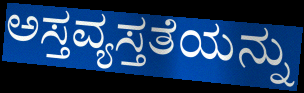
ಅಸ್ತವ್ಯಸ್ತತೆಯನ್ನು